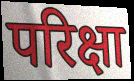
परिक्षा